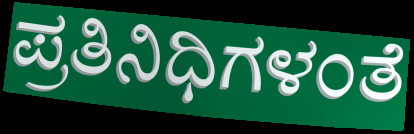
ಪ್ರತಿನಿಧಿಗಳಂತೆ